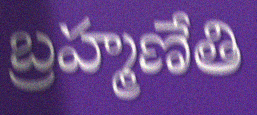
బ్రహ్మణేతి